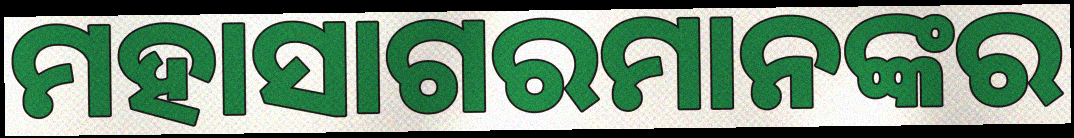
ମହାସାଗରମାନଙ୍କର